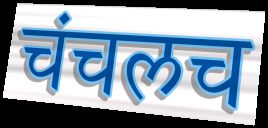
चंचलच